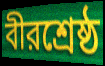
বীরশ্রেষ্ঠ